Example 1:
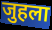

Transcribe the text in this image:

जुहला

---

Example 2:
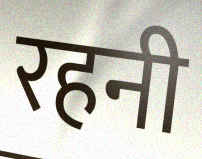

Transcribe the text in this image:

रहनी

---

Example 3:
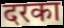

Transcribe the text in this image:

दरका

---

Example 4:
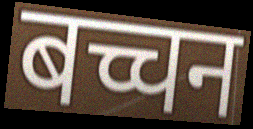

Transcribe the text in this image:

बच्चन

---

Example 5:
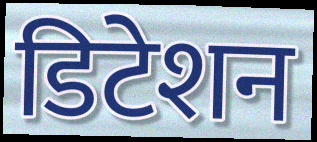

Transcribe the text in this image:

डिटेशन